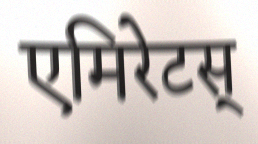
एमिरेटस्